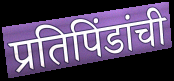
प्रतिपिंडांची